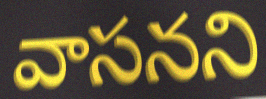
వాసనని